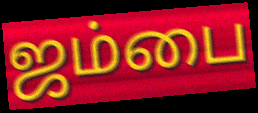
ஜம்பை